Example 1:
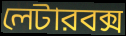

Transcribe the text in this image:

লেটারবক্স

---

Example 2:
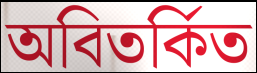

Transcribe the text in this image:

অবিতর্কিত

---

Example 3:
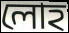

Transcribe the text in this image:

লোহ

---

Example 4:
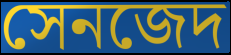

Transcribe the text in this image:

সেনজেদ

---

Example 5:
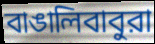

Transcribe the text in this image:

বাঙালিবাবুরা